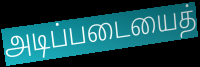
அடிப்படையைத்